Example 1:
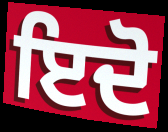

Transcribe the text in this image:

ਇਦੋ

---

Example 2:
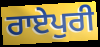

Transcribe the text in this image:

ਰਾਏਪੁਰੀ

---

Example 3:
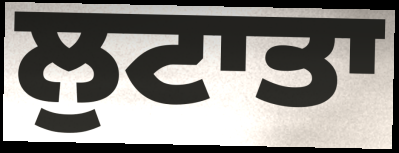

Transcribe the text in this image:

ਲੁਟਾਤਾ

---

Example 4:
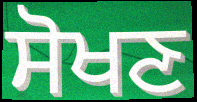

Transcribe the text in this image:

ਸੋਖਣ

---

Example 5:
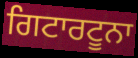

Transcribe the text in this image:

ਗਿਟਾਰਟੂਨਾ